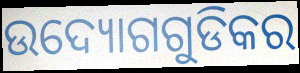
ଉଦ୍ୟୋଗଗୁଡିକର